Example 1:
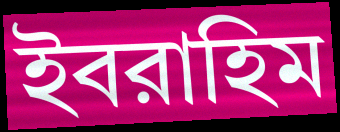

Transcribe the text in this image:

ইবরাহিম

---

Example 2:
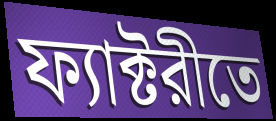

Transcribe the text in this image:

ফ্যাক্টরীতে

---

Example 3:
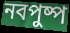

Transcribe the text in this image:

নবপুষ্প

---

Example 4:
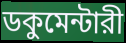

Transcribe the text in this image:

ডকুমেন্টারী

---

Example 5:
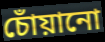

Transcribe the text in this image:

চোঁয়ানো